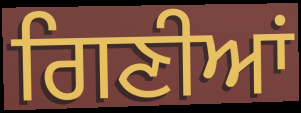
ਗਿਣੀਆਂ